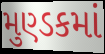
મુણ્ડકમાં